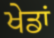
ਖੇਡਾਂ